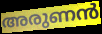
അരുണൻ